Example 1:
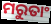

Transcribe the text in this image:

ମରୁତାଂ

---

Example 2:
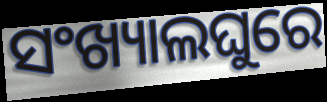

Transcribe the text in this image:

ସଂଖ୍ୟାଲଘୁରେ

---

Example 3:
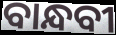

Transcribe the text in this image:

ବାନ୍ଧବୀ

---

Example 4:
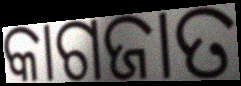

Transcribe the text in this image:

କାଗଜାତ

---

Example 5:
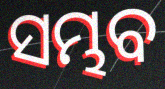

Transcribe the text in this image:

ସମ୍ଭବ